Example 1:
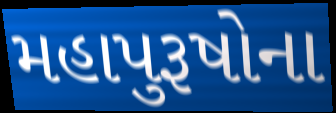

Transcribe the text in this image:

મહાપુરૂષોના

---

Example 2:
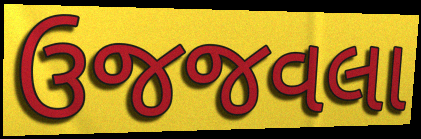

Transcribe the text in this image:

ઉજજવલા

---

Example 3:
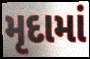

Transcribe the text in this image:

મૃદામાં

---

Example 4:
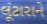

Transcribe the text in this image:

લૂંટારાને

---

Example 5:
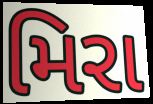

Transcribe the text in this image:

મિરા